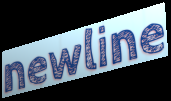
newline